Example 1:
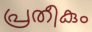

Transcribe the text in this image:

പ്രതീകും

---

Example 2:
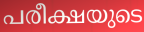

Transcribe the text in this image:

പരീക്ഷയുടെ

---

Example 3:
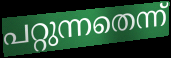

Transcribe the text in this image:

പറ്റുന്നതെന്ന്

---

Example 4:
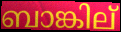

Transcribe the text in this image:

ബാങ്കില്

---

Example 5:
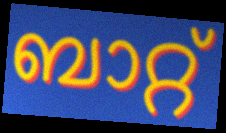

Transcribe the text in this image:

ബാറ്റ്